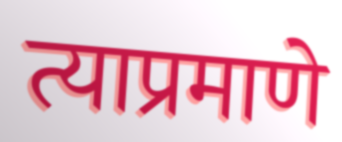
त्याप्रमाणे